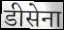
डीसेना